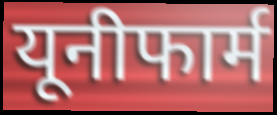
यूनीफार्म